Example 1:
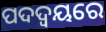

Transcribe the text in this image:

ପଦଦ୍ୱୟରେ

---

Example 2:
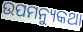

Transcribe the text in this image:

ଉପମନ୍ୟୁକଥା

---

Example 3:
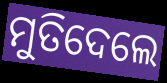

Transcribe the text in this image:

ମୁତିଦେଲେ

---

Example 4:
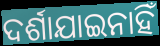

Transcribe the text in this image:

ଦର୍ଶାଯାଇନାହିଁ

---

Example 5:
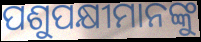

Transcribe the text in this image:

ପଶୁପକ୍ଷୀମାନଙ୍କୁ